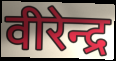
वीरेन्द्र